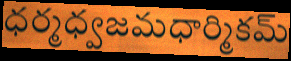
ధర్మధ్వజమధార్మికమ్